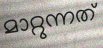
മാറ്റുന്നത്